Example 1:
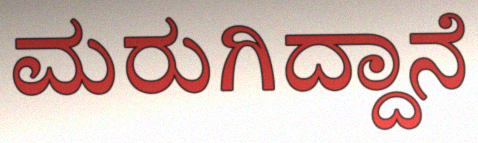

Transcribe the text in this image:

ಮರುಗಿದ್ದಾನೆ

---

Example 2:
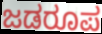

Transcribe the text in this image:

ಜಡರೂಪ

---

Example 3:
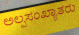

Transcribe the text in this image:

ಅಲ್ಪಸಂಖ್ಯಾತರು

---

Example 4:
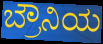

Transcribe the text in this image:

ಬ್ರೌನಿಯ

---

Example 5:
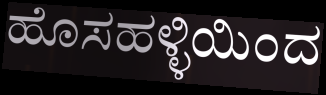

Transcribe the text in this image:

ಹೊಸಹಳ್ಳಿಯಿಂದ